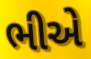
ભીએ